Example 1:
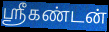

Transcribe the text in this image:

ஸ்ரீகண்டன்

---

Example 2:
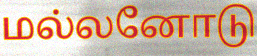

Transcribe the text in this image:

மல்லனோடு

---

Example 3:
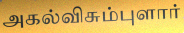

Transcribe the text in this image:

அகல்விசும்புளார்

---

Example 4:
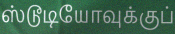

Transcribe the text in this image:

ஸ்டூடியோவுக்குப்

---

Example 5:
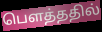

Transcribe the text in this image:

பௌத்ததில்